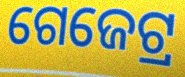
ଗେଜେଟ୍ର